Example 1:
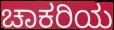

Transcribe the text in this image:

ಚಾಕರಿಯ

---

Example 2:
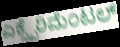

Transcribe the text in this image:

ಎಕ್ಸ್ಪೆರಿಮೆಂಟಲ್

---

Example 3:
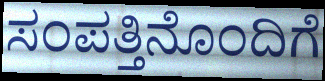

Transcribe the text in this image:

ಸಂಪತ್ತಿನೊಂದಿಗೆ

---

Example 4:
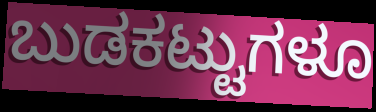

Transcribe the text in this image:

ಬುಡಕಟ್ಟುಗಳೂ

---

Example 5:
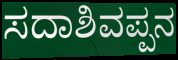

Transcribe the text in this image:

ಸದಾಶಿವಪ್ಪನ